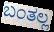
ಬಂತಲ್ಲ